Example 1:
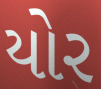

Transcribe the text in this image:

યોર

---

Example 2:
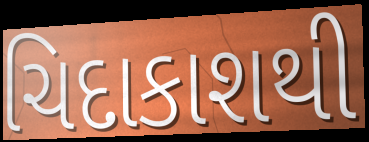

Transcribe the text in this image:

ચિદાકાશથી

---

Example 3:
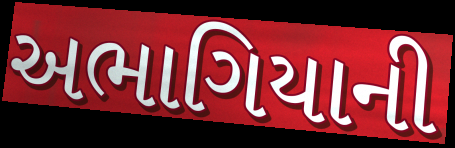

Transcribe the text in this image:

અભાગિયાની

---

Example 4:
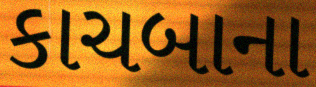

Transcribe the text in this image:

કાચબાના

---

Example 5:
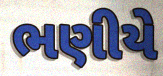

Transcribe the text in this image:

ભણીયે